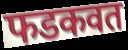
फडकवत